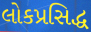
લોકપ્રસિદ્ધ